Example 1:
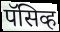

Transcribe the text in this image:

पॅसिव्ह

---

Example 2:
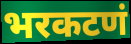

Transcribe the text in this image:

भरकटणं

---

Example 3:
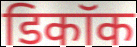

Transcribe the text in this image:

डिकॉक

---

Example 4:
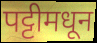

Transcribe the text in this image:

पट्टीमधून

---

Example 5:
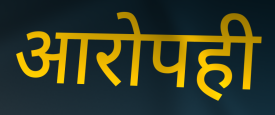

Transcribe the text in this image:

आरोपही